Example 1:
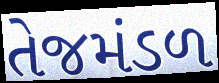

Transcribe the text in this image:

તેજમંડળ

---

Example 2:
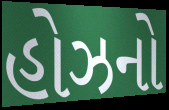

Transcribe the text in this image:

હોઝનો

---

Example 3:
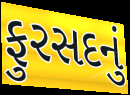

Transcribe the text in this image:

ફુરસદનું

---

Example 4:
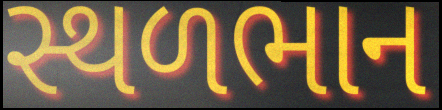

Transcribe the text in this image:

સ્થળભાન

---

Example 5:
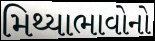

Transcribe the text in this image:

મિથ્યાભાવોનો